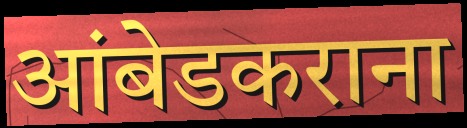
आंबेडकराना